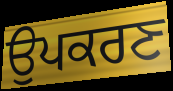
ਉਪਕਰਣ